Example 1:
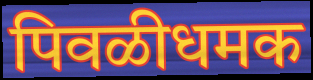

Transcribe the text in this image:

पिवळीधमक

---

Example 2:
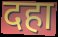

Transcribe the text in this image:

दहा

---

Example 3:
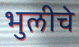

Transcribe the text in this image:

भुलीचे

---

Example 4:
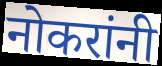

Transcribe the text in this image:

नोकरांनी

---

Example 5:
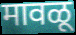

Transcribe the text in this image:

मावळू